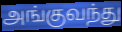
அங்குவந்து